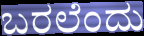
ಬರಲೆಂದು